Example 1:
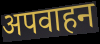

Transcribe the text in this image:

अपवाहन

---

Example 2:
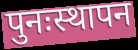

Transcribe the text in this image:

पुनःस्थापन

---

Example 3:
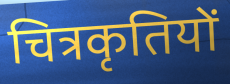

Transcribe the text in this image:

चित्रकृतियों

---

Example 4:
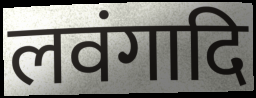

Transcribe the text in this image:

लवंगादि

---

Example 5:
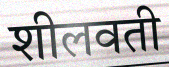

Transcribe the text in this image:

शीलवती